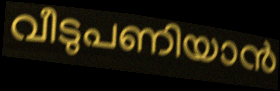
വീടുപണിയാൻ